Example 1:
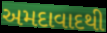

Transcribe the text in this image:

અમદાવાદથી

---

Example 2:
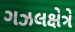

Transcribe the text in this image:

ગઝલક્ષેત્રે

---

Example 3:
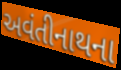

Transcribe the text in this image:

અવંતીનાથના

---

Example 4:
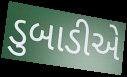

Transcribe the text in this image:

ડુબાડીએ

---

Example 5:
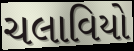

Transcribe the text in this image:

ચલાવિયો